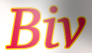
Biv